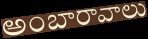
అంబారావాలు